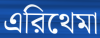
এরিথেমা